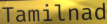
Tamilnad